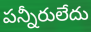
పన్నీరులేదు